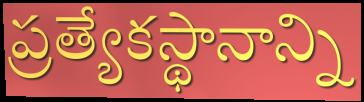
ప్రత్యేకస్థానాన్ని